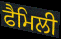
ਫੈਮਿਲੀ